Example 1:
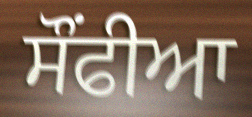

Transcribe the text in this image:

ਸੌਂਫੀਆ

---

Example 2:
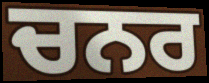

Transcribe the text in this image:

ਚਨਰ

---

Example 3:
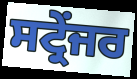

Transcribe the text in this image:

ਸਟ੍ਰੇਂਜਰ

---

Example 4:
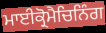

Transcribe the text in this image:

ਮਾਈਕ੍ਰੋਮੈਚਿਨਿੰਗ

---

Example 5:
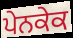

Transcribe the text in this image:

ਪੇਨਕੇਕ